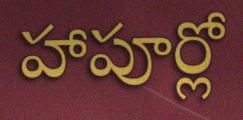
హాపూర్లో